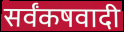
सर्वंकषवादी